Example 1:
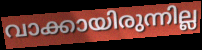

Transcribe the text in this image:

വാക്കായിരുന്നില്ല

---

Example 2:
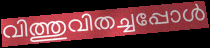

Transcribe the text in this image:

വിത്തുവിതച്ചപ്പോൾ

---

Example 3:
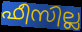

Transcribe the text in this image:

ഫീസില്ല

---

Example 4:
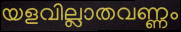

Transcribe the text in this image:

യളവില്ലാതവണ്ണം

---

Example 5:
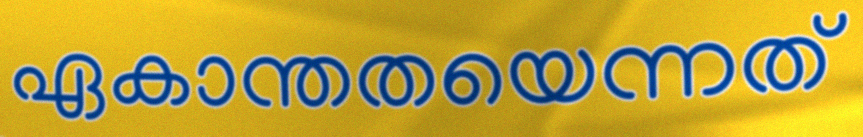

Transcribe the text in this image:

ഏകാന്തതയെന്നത്